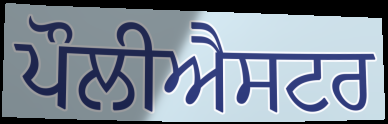
ਪੌਲੀਐਸਟਰ